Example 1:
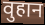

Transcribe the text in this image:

वुहान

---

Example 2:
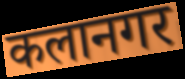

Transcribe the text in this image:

कलानगर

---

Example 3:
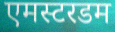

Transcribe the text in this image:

एमस्टरडम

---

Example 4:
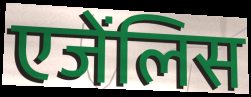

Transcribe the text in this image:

एजेंलिस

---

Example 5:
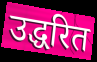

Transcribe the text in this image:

उद्धरित